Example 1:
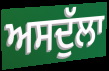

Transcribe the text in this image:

ਅਸਦੁੱਲਾ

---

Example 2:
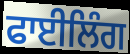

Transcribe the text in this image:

ਫਾਈਲਿੰਗ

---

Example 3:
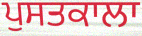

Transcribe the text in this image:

ਪੁਸਤਕਾਲਾ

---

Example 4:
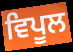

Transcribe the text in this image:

ਵਿਪੂਲ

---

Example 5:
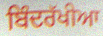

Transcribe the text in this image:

ਬਿੰਦਰੱਖੀਆ